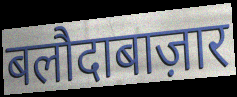
बलौदाबाज़ार